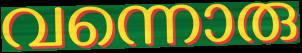
വന്നൊരു